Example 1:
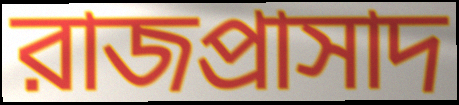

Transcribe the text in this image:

রাজপ্রাসাদ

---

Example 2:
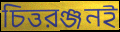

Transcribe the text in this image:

চিত্তরঞ্জনই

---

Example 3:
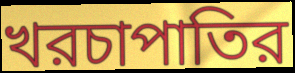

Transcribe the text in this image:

খরচাপাতির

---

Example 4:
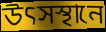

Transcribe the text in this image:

উৎসস্থানে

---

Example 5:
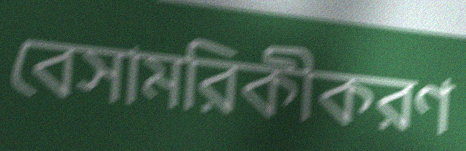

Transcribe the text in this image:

বেসামরিকীকরণ